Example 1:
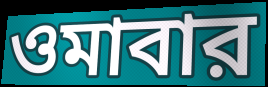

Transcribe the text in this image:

ওমাবার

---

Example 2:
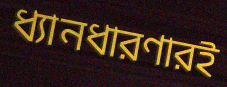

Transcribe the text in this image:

ধ্যানধারণারই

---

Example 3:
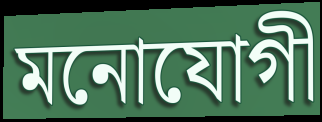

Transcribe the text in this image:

মনোযোগী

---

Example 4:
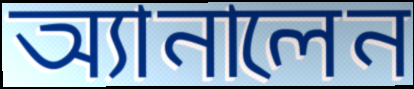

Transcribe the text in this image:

অ্যানালেন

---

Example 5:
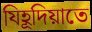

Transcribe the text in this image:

যিহূদিয়াতে